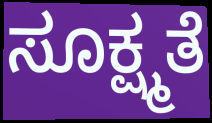
ಸೂಕ್ಷ್ಮತೆ